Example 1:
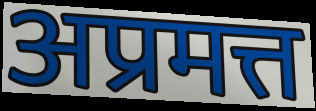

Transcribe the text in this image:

अप्रमत्त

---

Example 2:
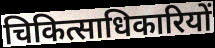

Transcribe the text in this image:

चिकित्साधिकारियों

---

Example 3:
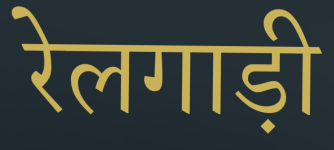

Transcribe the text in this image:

रेलगाड़ी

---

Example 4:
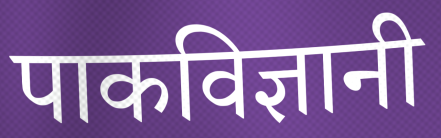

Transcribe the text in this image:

पाकविज्ञानी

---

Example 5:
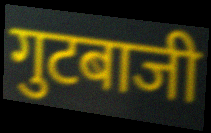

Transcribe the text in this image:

गुटबाजी